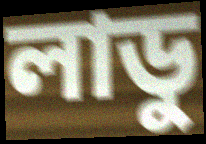
লাডু